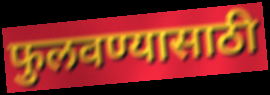
फुलवण्यासाठी